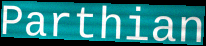
Parthian